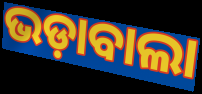
ଭଡ଼ାବାଲା